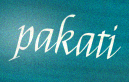
pakati